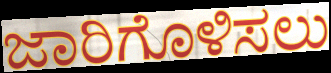
ಜಾರಿಗೊಳಿಸಲು